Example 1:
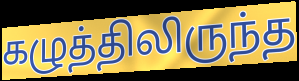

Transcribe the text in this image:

கழுத்திலிருந்த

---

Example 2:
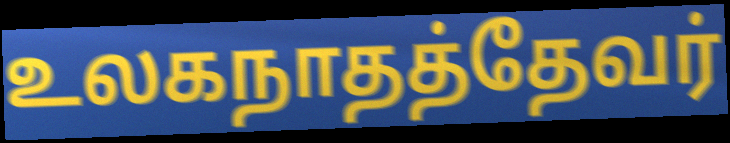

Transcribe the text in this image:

உலகநாதத்தேவர்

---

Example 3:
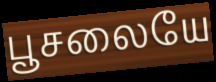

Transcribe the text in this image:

பூசலையே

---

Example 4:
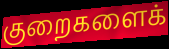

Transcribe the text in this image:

குறைகளைக்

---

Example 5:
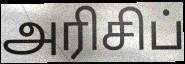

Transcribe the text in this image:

அரிசிப்